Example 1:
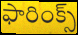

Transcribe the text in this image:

ఫారింక్స్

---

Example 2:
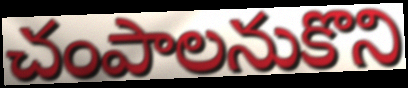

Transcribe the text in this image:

చంపాలనుకొని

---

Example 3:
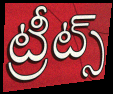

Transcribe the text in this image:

ట్రీట్స్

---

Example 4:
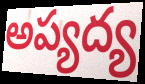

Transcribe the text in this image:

అప్యద్య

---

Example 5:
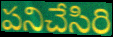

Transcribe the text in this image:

పనిచేసిరి